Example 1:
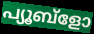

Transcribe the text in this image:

പ്യൂബ്ളോ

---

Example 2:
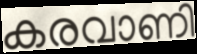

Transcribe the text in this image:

കരവാണി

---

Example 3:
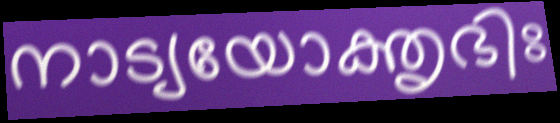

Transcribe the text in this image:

നാട്യയോക്തൃഭിഃ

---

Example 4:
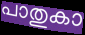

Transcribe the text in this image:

പാതുകാ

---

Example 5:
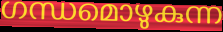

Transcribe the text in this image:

ഗന്ധമൊഴുകുന്ന